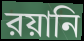
রয়ানি